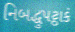
નિબદ્ધુપટ્ઠાકં